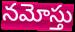
నమోస్తు